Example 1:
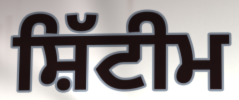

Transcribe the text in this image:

ਸ਼ਿੱਟੀਮ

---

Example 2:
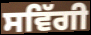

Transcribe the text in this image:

ਸਵਿੱਗੀ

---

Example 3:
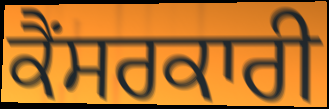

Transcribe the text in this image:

ਕੈਂਸਰਕਾਰੀ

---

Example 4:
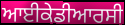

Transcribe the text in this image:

ਆਈਕੇਡੀਆਰਸੀ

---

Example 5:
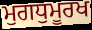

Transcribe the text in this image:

ਮੁਗਧੁਮੂਰਖ